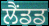
ਲੈਂਡਡ